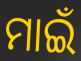
ମାଇଁ